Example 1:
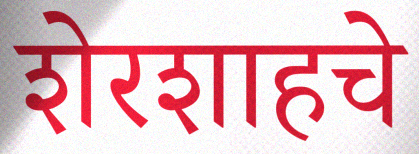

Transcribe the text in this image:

शेरशाहचे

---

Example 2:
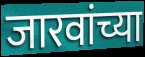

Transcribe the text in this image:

जारवांच्या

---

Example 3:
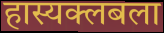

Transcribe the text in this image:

हास्यक्लबला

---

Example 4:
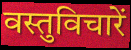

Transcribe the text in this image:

वस्तुविचारें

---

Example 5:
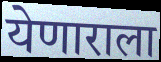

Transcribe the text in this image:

येणाराला